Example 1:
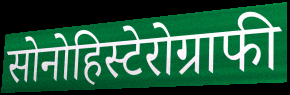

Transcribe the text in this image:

सोनोहिस्टेरोग्राफी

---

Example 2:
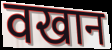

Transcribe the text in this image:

वखान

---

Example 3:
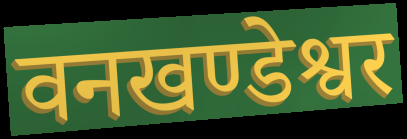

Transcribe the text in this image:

वनखण्डेश्वर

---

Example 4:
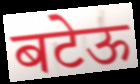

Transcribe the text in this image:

बटेऊ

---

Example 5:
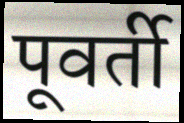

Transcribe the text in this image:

पूवर्ती